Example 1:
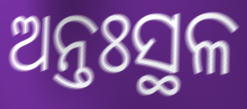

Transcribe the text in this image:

ଅନ୍ତଃସ୍ଥଳ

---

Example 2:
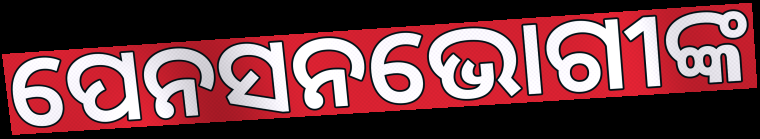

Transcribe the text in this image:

ପେନସନଭୋଗୀଙ୍କ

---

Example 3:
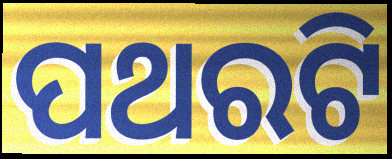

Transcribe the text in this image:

ପଥରଟି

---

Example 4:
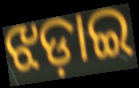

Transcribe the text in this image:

ଝଡ଼ାଇ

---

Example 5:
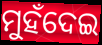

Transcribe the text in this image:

ମୁହଁଦେଇ